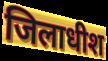
जिलाधीश